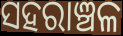
ସହରାଞ୍ଚଳ